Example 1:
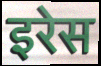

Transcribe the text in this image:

इरेस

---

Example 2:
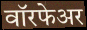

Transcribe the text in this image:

वॉरफेअर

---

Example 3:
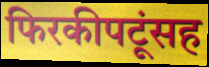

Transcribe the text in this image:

फिरकीपटूंसह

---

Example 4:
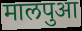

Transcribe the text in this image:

मालपुआ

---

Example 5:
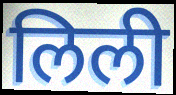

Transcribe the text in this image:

लिली